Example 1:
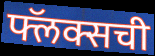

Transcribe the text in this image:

फ्लॅक्सची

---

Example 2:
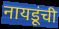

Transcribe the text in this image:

नायडूंची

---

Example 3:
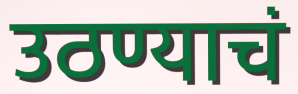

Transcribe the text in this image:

उठण्याचं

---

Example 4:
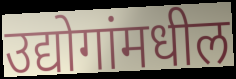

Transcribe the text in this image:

उद्योगांमधील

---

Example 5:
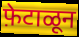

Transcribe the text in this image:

फ़ेटाळून